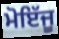
ਮੋਇੱਜੂ